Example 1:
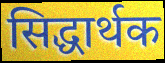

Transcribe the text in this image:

सिद्धार्थक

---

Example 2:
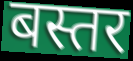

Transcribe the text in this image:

बस्तर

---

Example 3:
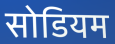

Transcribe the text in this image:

सोडियम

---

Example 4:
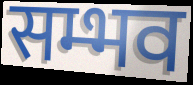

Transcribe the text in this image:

सम्भव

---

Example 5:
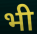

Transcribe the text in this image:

भी